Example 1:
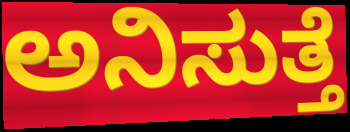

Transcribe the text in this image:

ಅನಿಸುತ್ತೆ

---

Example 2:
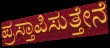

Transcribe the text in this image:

ಪ್ರಸ್ತಾಪಿಸುತ್ತೇನೆ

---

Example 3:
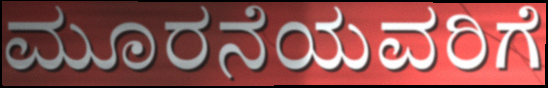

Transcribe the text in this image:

ಮೂರನೆಯವರಿಗೆ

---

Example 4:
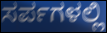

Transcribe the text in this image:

ಸರ್ಪಗಳಲ್ಲಿ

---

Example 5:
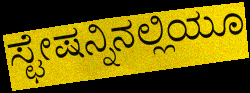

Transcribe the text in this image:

ಸ್ಟೇಷನ್ನಿನಲ್ಲಿಯೂ